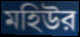
মহিউর